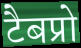
टैबप्रो